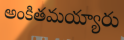
అంకితమయ్యారు